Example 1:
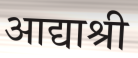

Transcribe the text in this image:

आद्याश्री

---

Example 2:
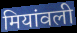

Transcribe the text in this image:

मियांवली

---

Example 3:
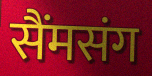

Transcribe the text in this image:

सैंमसंग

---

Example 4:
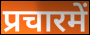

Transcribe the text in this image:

प्रचारमें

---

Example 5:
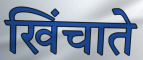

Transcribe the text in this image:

खिंचाते